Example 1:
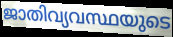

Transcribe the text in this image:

ജാതിവ്യവസ്ഥയുടെ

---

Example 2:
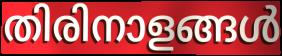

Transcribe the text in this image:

തിരിനാളങ്ങൾ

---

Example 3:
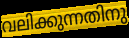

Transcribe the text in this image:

വലിക്കുന്നതിനു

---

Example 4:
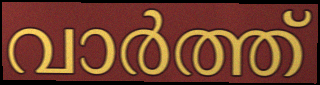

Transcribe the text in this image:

വാർത്ത്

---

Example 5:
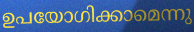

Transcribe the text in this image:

ഉപയോഗിക്കാമെന്നു